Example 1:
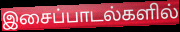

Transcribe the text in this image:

இசைப்பாடல்களில்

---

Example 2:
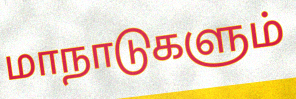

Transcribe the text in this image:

மாநாடுகளும்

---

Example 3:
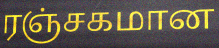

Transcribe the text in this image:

ரஞ்சகமான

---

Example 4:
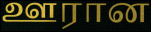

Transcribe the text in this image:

ஊரான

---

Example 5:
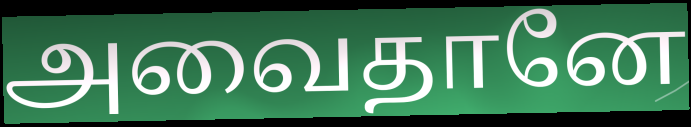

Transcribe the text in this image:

அவைதானே